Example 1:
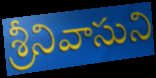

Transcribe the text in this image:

శ్రీనివాసుని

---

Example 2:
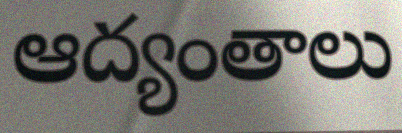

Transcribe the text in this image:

ఆద్యంతాలు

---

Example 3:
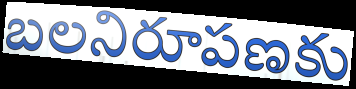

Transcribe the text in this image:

బలనిరూపణకు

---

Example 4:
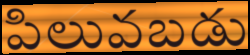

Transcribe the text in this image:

పిలువబడు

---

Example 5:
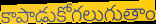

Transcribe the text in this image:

కాపాడుకోగలుగుతాం